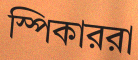
স্পিকাররা